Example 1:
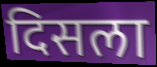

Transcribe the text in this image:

दिसला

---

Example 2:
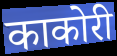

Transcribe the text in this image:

काकोरी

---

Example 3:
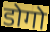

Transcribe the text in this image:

डोगो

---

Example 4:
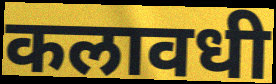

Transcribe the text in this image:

कलावधी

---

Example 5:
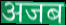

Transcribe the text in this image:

अजब